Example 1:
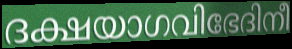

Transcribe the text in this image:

ദക്ഷയാഗവിഭേദിനീ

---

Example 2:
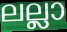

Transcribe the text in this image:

ലല്ലാ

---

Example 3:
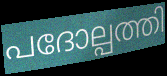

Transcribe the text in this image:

പദോല്പത്തി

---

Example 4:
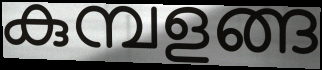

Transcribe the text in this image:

കുമ്പളങ്ങ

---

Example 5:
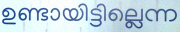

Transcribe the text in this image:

ഉണ്ടായിട്ടില്ലെന്ന